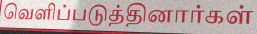
வெளிப்படுத்தினார்கள்